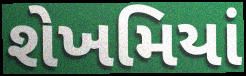
શેખમિયાં